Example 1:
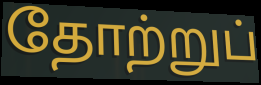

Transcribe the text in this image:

தோற்றுப்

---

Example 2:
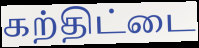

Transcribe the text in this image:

கற்திட்டை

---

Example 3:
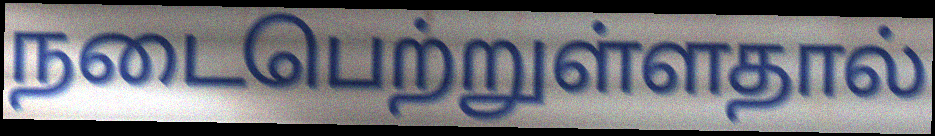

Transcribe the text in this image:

நடைபெற்றுள்ளதால்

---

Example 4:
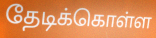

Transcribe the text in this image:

தேடிக்கொள்ள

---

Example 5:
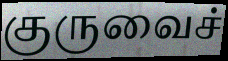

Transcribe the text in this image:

குருவைச்